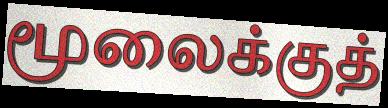
மூலைக்குத்